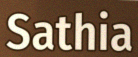
Sathia